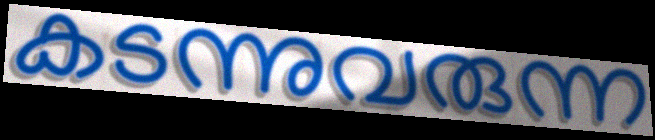
കടന്നുവരുന്ന